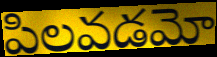
పిలవడమో